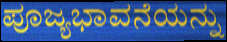
ಪೂಜ್ಯಭಾವನೆಯನ್ನು